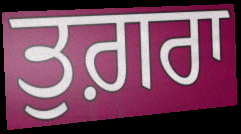
ਤੁਗ਼ਰਾ